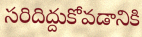
సరిదిద్దుకోవడానికి